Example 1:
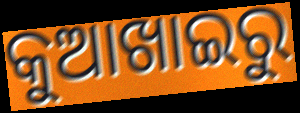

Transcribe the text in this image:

କୁଆଖାଇରୁ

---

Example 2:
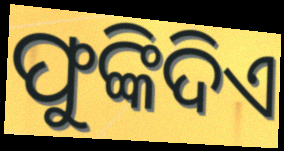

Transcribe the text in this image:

ଫୁଙ୍କିଦିଏ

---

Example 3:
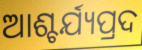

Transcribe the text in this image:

ଆଶ୍ଚର୍ଯ୍ୟପ୍ରଦ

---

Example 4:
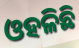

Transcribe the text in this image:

ଓହଳିଛି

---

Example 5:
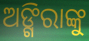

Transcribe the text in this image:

ଅଙ୍ଗିରାଙ୍କୁ